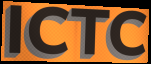
ICTC